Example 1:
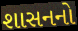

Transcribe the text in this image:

શાસનનો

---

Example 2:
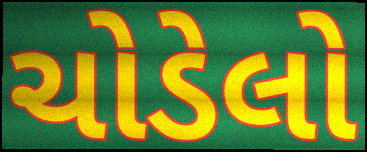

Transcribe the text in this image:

ચોડેલો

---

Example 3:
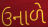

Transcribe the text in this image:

ઉનાળે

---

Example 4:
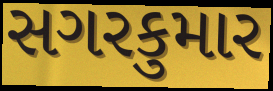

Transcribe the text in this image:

સગરકુમાર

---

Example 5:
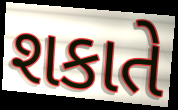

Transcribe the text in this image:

શકાતે